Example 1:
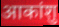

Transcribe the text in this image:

आकांशु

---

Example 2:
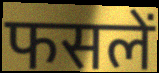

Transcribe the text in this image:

फसलें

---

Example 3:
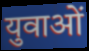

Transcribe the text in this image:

युवाओं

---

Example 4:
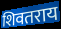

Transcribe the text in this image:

शिवतराय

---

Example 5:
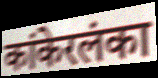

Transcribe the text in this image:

कांकेरलंका